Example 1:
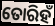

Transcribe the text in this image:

ତୋରିହଁ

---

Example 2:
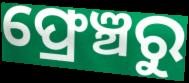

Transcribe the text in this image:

ଫ୍ରେଞ୍ଚରୁ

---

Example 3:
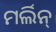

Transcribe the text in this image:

ମର୍ଲିନ୍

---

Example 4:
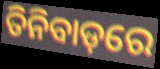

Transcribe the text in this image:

ତିନିବାଡ଼ରେ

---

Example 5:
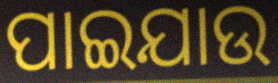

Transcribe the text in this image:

ପାଇଯାଉ